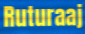
Ruturaaj